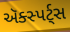
ઍક્સ્પર્ટ્સ